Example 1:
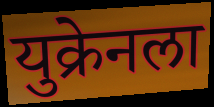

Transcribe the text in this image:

युक्रेनला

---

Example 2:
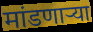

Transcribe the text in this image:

मांडणाऱ्या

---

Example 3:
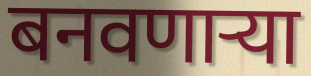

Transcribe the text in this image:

बनवणाऱ्या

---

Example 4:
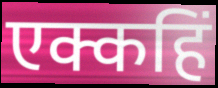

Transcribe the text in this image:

एक्कहिं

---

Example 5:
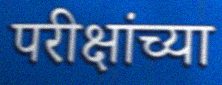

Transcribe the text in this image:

परीक्षांच्या